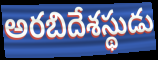
అరబిదేశస్థుడు